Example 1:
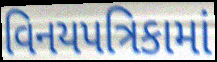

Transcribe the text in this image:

વિનયપત્રિકામાં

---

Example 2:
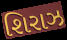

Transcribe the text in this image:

શિરાઝ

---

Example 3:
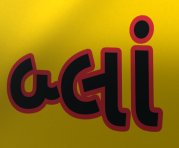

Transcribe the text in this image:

બ્લાં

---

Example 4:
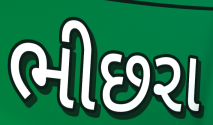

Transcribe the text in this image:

ભીછરા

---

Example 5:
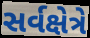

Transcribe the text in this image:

સર્વક્ષેત્રે